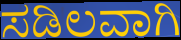
ಸಡಿಲವಾಗಿ